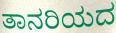
ತಾನರಿಯದ